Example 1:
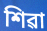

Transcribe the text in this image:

শিৱা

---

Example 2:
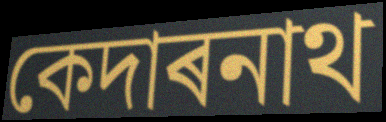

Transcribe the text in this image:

কেদাৰনাথ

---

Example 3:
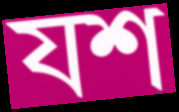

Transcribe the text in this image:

যশ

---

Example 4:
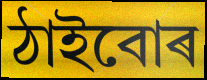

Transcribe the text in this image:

ঠাইবোৰ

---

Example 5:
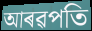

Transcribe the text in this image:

আৰৱপতি